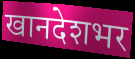
खानदेशभर